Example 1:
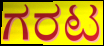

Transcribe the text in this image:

ಗರಟ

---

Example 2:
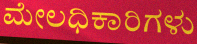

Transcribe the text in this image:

ಮೇಲಧಿಕಾರಿಗಳು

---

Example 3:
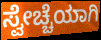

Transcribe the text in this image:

ಸ್ವೇಚ್ಚೆಯಾಗಿ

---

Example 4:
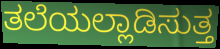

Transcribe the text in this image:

ತಲೆಯಲ್ಲಾಡಿಸುತ್ತ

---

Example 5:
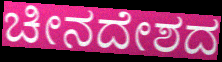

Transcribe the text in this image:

ಚೀನದೇಶದ